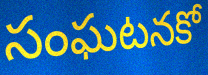
సంఘటనకో